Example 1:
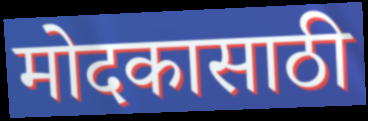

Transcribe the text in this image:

मोदकासाठी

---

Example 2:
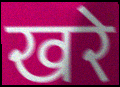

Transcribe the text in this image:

खरे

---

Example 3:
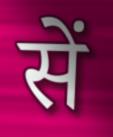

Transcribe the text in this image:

सें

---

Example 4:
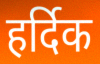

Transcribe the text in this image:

हर्दिक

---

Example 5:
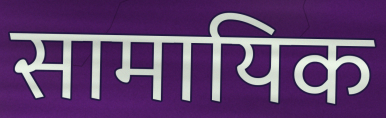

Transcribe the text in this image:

सामायिक